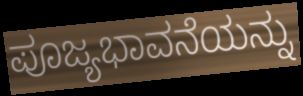
ಪೂಜ್ಯಭಾವನೆಯನ್ನು